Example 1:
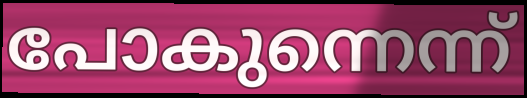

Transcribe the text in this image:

പോകുന്നെന്ന്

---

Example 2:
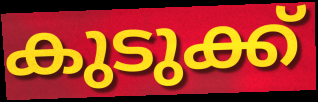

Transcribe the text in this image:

കുടുക്ക്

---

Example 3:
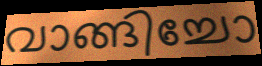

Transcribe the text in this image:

വാങ്ങിച്ചോ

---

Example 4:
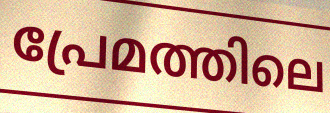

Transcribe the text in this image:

പ്രേമത്തിലെ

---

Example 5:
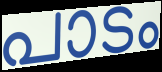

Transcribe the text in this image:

പാടം